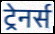
ट्रेनर्स